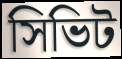
সিভিট